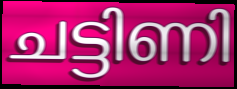
ചട്ടിണി